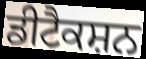
ਡੀਟੈਕਸ਼ਨ